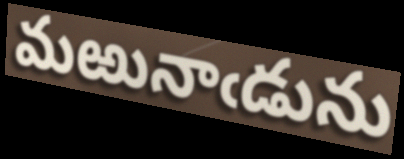
మఱునాఁడును